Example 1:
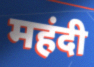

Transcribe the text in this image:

महंदी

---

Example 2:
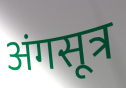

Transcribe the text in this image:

अंगसूत्र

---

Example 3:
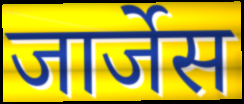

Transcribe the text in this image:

जार्जेस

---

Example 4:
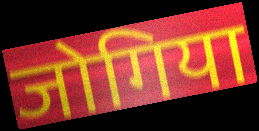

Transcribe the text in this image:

जोगिया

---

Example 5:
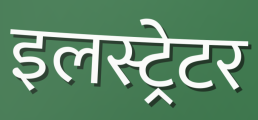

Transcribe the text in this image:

इलस्ट्रेटर